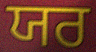
ਯਰ